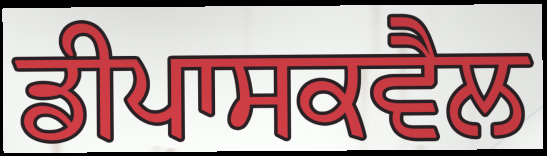
ਡੀਪਾਸਕਵੈਲ